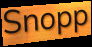
Snopp